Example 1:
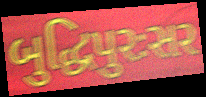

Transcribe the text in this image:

બુદ્ધિપુરઃસર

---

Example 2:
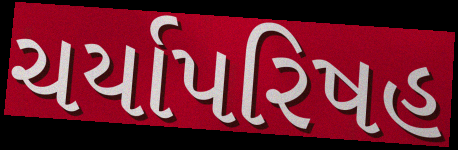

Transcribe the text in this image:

ચર્યાપરિષહ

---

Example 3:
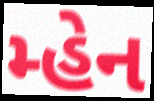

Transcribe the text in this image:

મ્હેન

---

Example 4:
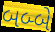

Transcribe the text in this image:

બબ્બે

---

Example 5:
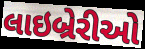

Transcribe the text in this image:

લાઇબ્રેરીઓ